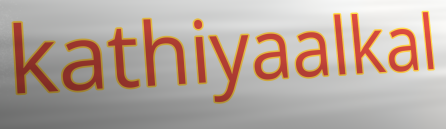
kathiyaalkal